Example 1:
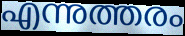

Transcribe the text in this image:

എന്നുത്തരം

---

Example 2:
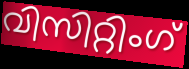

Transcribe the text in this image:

വിസിറ്റിംഗ്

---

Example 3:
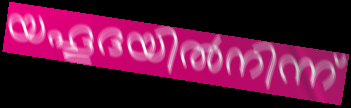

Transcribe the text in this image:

യഹൂദയിൽനിന്ന്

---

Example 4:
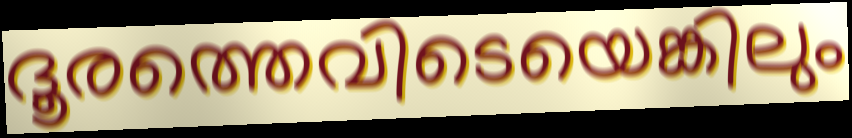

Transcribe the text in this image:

ദൂരത്തെവിടെയെങ്കിലും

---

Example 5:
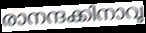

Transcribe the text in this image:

രാനന്ദക്കിനാവു